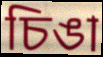
চিঙা